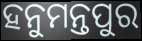
ହନୁମନ୍ତପୁର